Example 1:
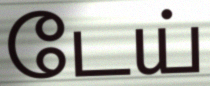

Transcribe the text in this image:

டேய்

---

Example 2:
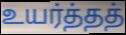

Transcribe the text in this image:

உயர்த்தத்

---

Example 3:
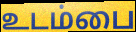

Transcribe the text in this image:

உடம்பை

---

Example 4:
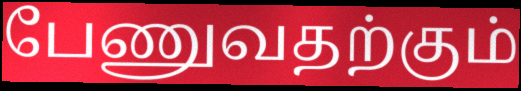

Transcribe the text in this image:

பேணுவதற்கும்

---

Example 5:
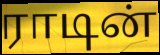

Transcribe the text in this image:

ராடின்